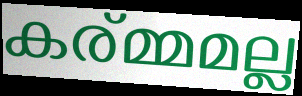
കര്മ്മമല്ല